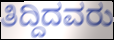
ತಿದ್ದಿದವರು